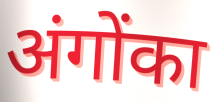
अंगोंका